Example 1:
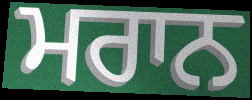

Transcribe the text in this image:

ਮਰਾਨ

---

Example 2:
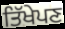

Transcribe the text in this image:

ਤਿੱਖੇਪਣ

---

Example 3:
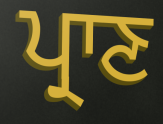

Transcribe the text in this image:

ਪ੍ਰਾਣ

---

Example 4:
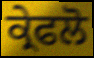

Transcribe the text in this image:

ਕ੍ਰੇਫਲੋ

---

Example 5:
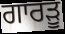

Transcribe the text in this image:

ਗਾਰੜੂ